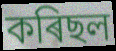
কৰিছল